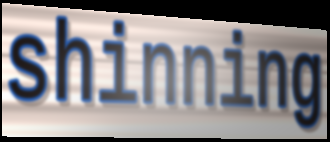
shinning